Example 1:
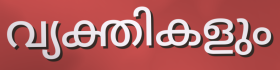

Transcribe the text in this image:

വ്യക്തികളും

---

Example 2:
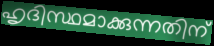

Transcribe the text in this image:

ഹൃദിസ്ഥമാക്കുന്നതിന്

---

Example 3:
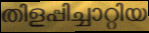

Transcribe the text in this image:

തിളപ്പിച്ചാറ്റിയ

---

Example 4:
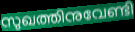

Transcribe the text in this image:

സുഖത്തിനുവേണ്ടി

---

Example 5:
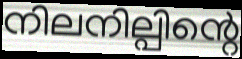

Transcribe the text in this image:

നിലനില്പിന്റെ